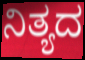
ನಿತ್ಯದ